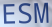
ESM